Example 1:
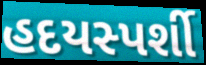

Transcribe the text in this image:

હદયસ્પર્શી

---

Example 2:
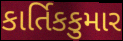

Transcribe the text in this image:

કાર્તિકકુમાર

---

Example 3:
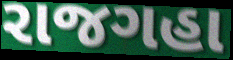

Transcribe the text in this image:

રાજગહા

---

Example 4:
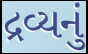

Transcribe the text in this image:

દ્રવ્યનું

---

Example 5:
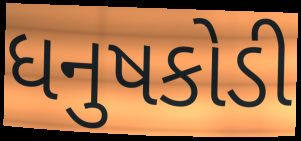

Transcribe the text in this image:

ધનુષકોડી